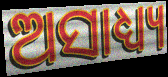
ଅସାଧ୍ୟ୍ୟ